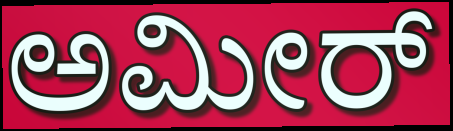
ಅಮೀರ್